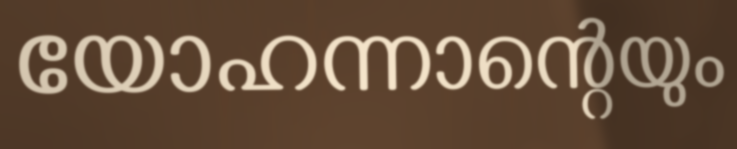
യോഹന്നാന്റെയും